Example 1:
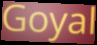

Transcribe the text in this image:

Goyal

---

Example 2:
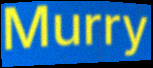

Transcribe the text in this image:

Murry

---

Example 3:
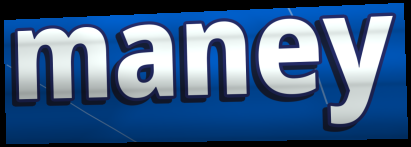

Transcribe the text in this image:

maney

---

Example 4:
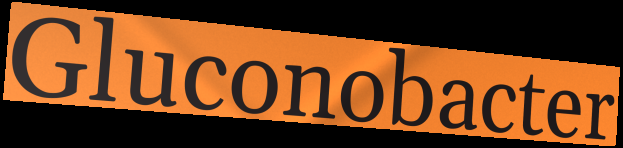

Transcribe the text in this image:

Gluconobacter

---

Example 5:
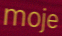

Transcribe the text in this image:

moje